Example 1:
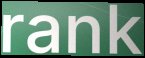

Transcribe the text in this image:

rank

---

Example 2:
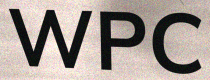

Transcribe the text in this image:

WPC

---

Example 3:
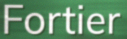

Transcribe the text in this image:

Fortier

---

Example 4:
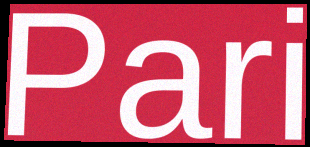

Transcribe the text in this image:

Pari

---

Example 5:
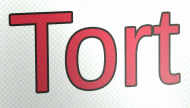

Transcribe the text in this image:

Tort